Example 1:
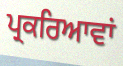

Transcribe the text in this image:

ਪ੍ਰਕਰਿਆਵਾਂ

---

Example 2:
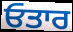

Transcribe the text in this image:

ਓਤਾਰ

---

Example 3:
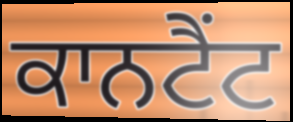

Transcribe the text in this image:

ਕਾਨਟੈਂਟ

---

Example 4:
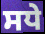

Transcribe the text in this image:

ਸਧੇ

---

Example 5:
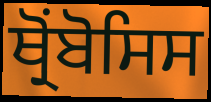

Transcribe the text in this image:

ਥ੍ਰੋਂਬੋਸਿਸ